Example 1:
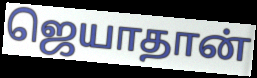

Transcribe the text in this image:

ஜெயாதான்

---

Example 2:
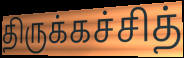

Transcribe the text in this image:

திருக்கச்சித்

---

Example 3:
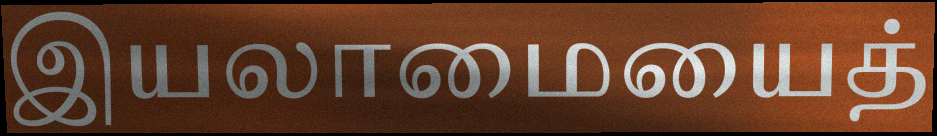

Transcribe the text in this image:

இயலாமையைத்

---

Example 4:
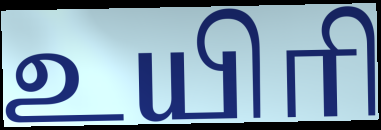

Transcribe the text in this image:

உயிரி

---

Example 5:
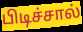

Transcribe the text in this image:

பிடிச்சால்